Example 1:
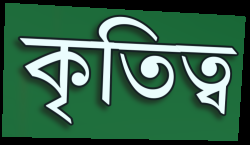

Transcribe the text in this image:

কৃতিত্ব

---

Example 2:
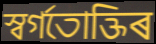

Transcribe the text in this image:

স্বৰ্গতোক্তিৰ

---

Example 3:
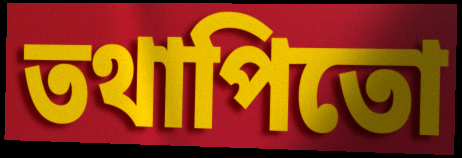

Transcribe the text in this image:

তথাপিতো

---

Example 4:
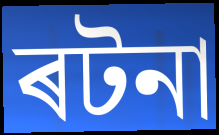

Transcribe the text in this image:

ৰটনা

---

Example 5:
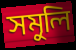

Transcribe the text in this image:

সমুলি